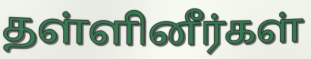
தள்ளினீர்கள்